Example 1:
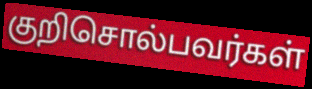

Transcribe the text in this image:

குறிசொல்பவர்கள்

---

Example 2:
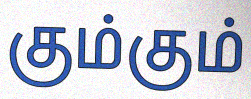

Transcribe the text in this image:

கும்கும்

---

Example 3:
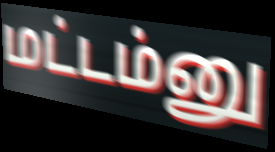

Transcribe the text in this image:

மட்டம்னு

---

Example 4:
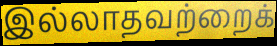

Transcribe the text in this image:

இல்லாதவற்றைக்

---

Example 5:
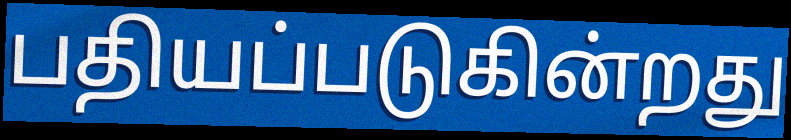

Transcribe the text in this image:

பதியப்படுகின்றது